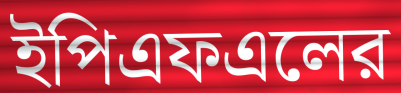
ইপিএফএলের